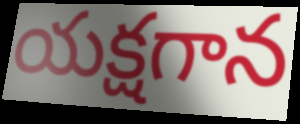
యక్షగాన